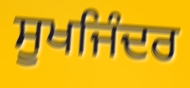
ਸੂਖਜਿੰਦਰ